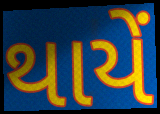
થાયેં